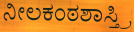
ನೀಲಕಂಠಶಾಸ್ತ್ರಿ